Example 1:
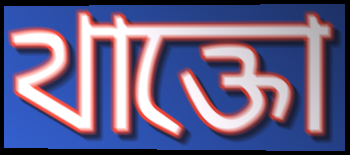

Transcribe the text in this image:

থাক্তো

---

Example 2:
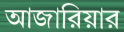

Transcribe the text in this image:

আজারিয়ার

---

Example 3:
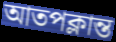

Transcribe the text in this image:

আতপক্লান্ত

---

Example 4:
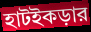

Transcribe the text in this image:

হাটইকড়ার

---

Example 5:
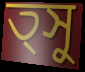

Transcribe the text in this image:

ত্সু